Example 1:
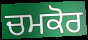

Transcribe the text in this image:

ਚਮਕੋਰ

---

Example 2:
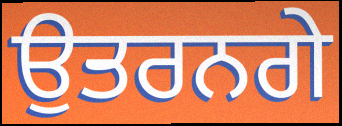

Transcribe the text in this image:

ਉਤਰਨਗੇ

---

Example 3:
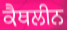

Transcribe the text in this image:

ਕੈਥਲੀਨ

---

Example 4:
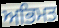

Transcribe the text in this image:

ਅਭਿਮਤ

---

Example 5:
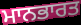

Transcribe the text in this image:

ਮਾਨਭਾਰਤ